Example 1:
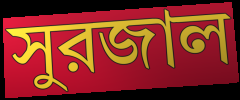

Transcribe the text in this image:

সুরজাল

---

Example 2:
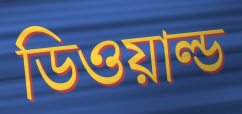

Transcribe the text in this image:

ডিওয়াল্ড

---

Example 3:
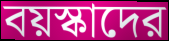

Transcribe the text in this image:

বয়স্কাদের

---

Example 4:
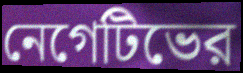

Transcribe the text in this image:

নেগেটিভের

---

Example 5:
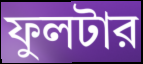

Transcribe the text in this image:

ফুলটার